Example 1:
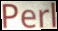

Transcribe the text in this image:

Perl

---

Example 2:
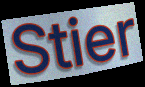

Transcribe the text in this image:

Stier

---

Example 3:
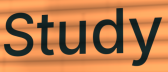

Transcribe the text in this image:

Study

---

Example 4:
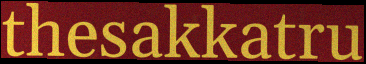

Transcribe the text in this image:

thesakkatru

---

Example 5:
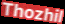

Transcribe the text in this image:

Thozhil